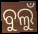
ବୁଲୁଁ